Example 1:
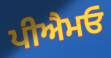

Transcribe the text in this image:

ਪੀਐਮਓ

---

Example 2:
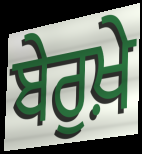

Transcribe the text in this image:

ਬੇਰੁਖ਼ੇ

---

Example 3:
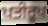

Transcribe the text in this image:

ਪਤੀਰੂਪ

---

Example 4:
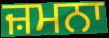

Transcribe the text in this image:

ਜ਼ਮਨਾ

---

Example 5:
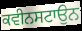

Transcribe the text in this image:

ਕਵੀਨਸਟਾਉਨ